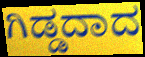
ಗಿಡ್ಡದಾದ